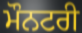
ਮੌਨਟਰੀ